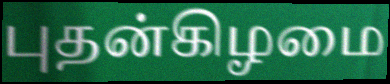
புதன்கிழமை